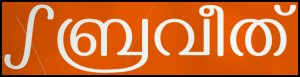
ഽബ്രവീത്